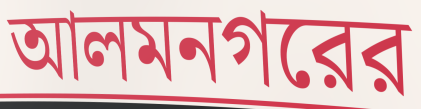
আলমনগরের